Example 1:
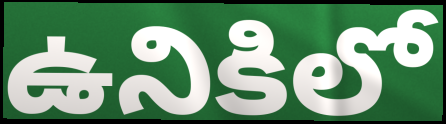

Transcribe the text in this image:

ఉనికిలో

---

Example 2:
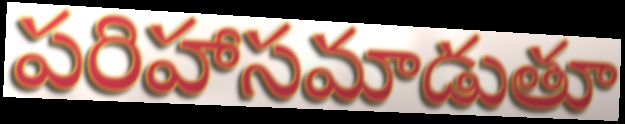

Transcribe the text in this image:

పరిహాసమాడుతూ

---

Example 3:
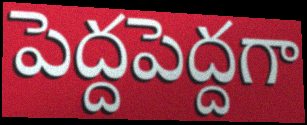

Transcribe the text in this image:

పెద్దపెద్దగా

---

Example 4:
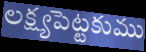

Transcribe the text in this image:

లక్ష్యపెట్టకుము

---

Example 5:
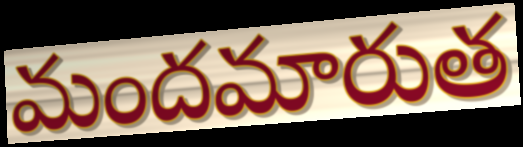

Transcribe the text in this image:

మందమారుత